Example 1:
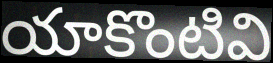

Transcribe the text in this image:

యాకొంటివి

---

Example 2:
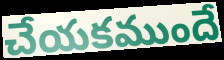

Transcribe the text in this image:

చేయకముందే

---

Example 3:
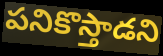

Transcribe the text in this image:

పనికొస్తాడని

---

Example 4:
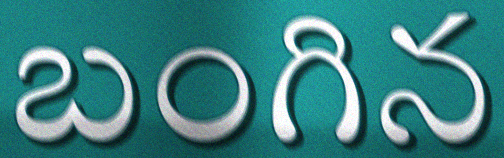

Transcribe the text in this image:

బంగిన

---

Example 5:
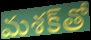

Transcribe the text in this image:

మశక్‌తో